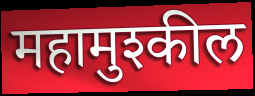
महामुश्कील